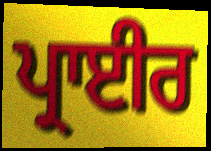
ਪ੍ਰਾਈਰ